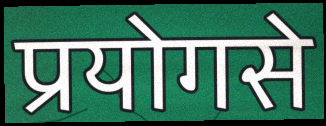
प्रयोगसे